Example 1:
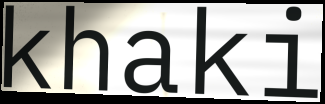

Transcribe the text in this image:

khaki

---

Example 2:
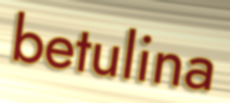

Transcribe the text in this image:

betulina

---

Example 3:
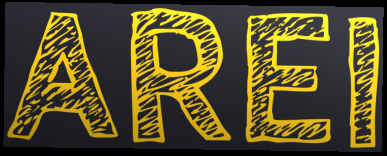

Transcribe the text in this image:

AREI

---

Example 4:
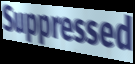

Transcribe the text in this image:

Suppressed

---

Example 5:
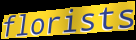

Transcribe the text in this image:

florists